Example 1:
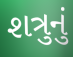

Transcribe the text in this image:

શત્રુનું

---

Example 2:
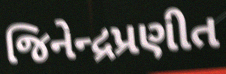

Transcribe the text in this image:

જિનેન્દ્રપ્રણીત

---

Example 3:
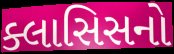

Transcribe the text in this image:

ક્લાસિસનો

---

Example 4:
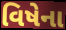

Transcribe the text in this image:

વિષેના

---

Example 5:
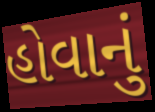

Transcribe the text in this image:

હોવાનું